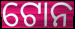
ଟୋନ